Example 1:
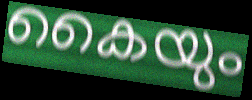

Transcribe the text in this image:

കൈയും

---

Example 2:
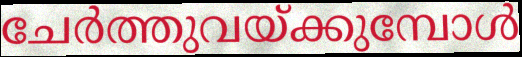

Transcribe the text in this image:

ചേർത്തുവയ്ക്കുമ്പോൾ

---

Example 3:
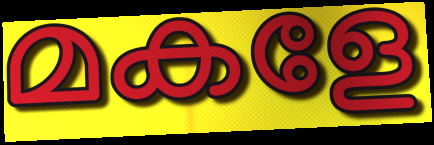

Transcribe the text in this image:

മകളേ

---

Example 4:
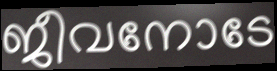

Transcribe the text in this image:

ജീവനോടേ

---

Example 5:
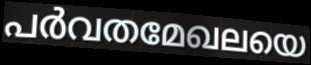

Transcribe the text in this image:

പർവതമേഖലയെ